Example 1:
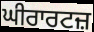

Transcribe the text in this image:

ਘੀਰਾਰਟਜ਼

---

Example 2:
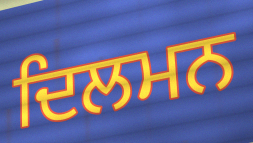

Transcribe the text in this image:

ਦਿਲਮਨ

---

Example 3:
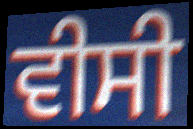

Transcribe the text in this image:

ਵੀਸੀ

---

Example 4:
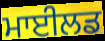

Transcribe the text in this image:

ਮਾਈਲਡ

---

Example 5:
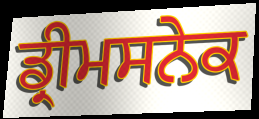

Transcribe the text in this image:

ਡ੍ਰੀਮਸਨੇਕ